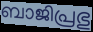
ബാജിപ്രഭു